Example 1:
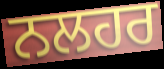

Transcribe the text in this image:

ਨਲਹਰ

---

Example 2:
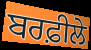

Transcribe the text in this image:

ਬਰਫ਼ੀਲੇ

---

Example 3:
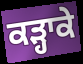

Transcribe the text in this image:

ਕੜ੍ਹਾਕੇ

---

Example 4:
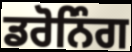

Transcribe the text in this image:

ਡਰੋਨਿੰਗ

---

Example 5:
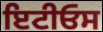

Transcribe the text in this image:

ਇਟੀਓਸ